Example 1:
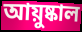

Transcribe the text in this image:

আয়ুষ্কাল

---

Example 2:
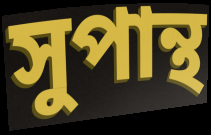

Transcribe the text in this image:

সুপান্থ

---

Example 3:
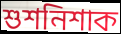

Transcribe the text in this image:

শুশনিশাক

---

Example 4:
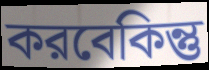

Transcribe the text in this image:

করবেকিন্তু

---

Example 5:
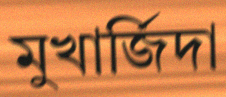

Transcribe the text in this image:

মুখার্জিদা